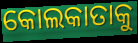
କୋଲକାତାକୁ